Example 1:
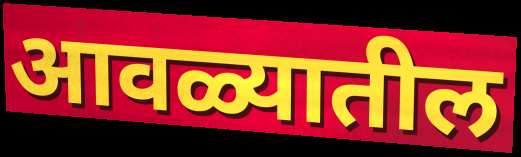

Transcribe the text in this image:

आवळ्यातील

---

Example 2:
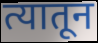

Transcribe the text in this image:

त्यातून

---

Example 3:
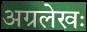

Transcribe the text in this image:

अग्रलेखः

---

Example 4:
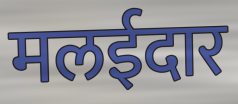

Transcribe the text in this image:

मलईदार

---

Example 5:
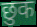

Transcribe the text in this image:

छुक